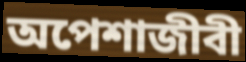
অপেশাজীবী